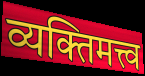
व्यक्तिमत्त्व